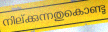
നില്ക്കുന്നതുകൊണ്ടു